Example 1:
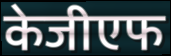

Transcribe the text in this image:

केजीएफ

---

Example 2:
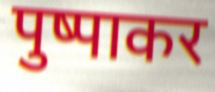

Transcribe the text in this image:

पुष्पाकर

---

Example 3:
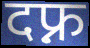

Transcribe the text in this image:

दफ्न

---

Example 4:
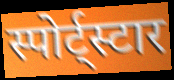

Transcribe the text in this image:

स्पोर्ट्स्टार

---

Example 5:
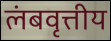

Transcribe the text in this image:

लंबवृत्तीय